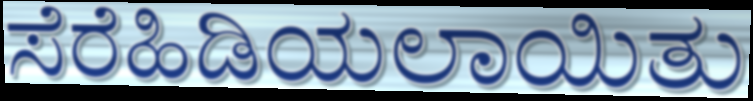
ಸೆರೆಹಿಡಿಯಲಾಯಿತು